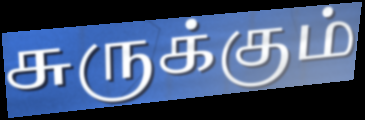
சுருக்கும்